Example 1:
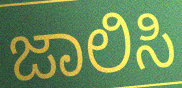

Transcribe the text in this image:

ಜಾಲಿಸಿ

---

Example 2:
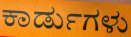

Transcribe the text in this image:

ಕಾರ್ಡುಗಳು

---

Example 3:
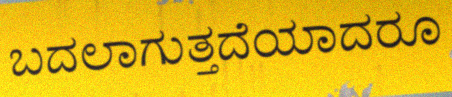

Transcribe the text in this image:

ಬದಲಾಗುತ್ತದೆಯಾದರೂ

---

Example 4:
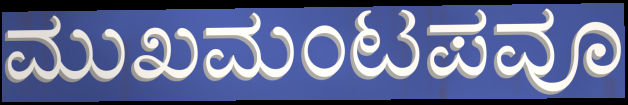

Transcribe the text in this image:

ಮುಖಮಂಟಪವೂ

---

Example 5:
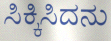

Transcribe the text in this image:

ಸಿಕ್ಕಿಸಿದನು